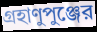
গ্রহাণুপুঞ্জের